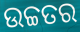
ଉଚ୍ଚତର